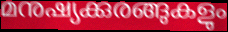
മനുഷ്യക്കുരങ്ങുകളും